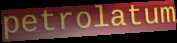
petrolatum